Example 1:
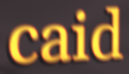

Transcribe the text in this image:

caid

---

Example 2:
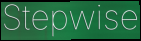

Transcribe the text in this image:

Stepwise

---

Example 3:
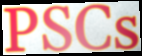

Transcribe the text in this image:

PSCs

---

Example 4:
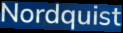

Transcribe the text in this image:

Nordquist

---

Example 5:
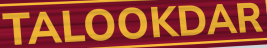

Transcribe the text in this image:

TALOOKDAR